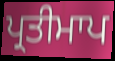
ਪ੍ਰਤੀਮਾਪ